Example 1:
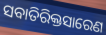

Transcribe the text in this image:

ସବାତିରିକ୍ତସାରେଣ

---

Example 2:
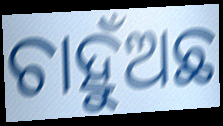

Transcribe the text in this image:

ଚାହୁଁଅଛ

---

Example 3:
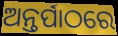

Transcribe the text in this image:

ଅନ୍ତର୍ପାଠରେ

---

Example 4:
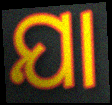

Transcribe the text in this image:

ଯା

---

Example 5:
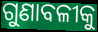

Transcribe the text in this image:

ଗୁଣାବଳୀକୁ